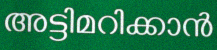
അട്ടിമറിക്കാൻ